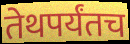
तेथपर्यंतच